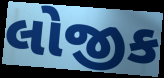
લોજીક